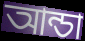
আন্ডা